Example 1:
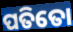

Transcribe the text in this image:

ପତିତୋ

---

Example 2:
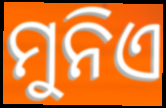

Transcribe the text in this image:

ମୁନିଏ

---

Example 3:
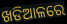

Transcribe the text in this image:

ଖଡିଆଳରେ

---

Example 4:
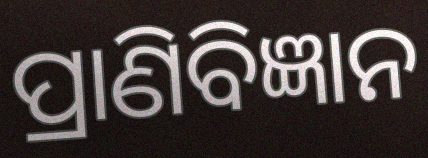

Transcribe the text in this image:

ପ୍ରାଣିବିଜ୍ଞାନ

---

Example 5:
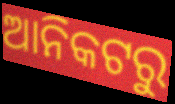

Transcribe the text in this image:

ଆନିକଟରୁ